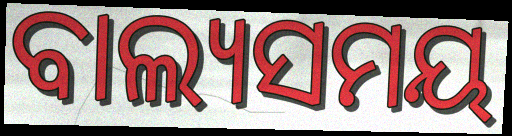
ବାଲ୍ୟସମୟ